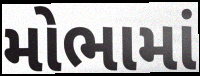
મોભામાં